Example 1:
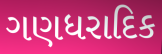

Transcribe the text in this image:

ગણધરાદિક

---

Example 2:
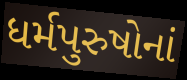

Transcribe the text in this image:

ધર્મપુરુષોનાં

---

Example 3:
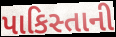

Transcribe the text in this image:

પાકિસ્તાની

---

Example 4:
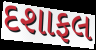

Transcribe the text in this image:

દશાફલ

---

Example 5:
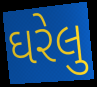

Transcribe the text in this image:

ઘરેલુ